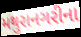
મથુરાનગરીના